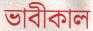
ভাবীকাল